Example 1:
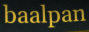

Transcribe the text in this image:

baalpan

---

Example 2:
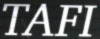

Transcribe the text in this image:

TAFI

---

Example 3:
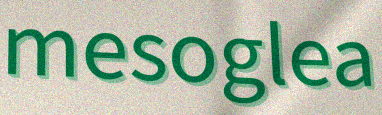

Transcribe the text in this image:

mesoglea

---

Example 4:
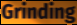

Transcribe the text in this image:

Grinding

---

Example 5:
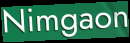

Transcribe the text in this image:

Nimgaon